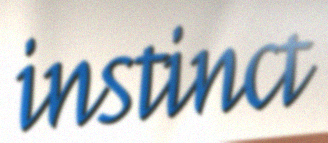
instinct